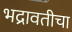
भद्रावतीचा